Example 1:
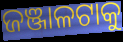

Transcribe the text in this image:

ଜଞ୍ଜାଳଟାକୁ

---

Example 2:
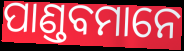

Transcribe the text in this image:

ପାଣ୍ଡବମାନେ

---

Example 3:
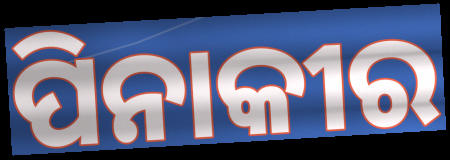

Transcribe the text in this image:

ପିନାକୀର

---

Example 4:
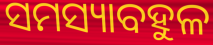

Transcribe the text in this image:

ସମସ୍ୟାବହୁଳ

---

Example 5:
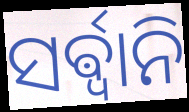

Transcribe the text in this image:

ସର୍ଵ୍ଵାନି